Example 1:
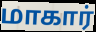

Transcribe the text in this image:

மாகார்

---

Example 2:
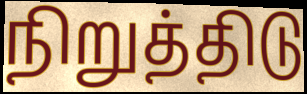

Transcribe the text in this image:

நிறுத்திடு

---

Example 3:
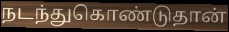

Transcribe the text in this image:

நடந்துகொண்டுதான்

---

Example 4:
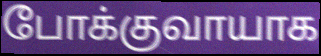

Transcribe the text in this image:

போக்குவாயாக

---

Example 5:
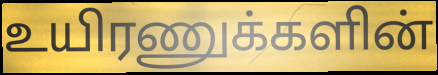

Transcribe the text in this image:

உயிரணுக்களின்